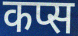
कप्स